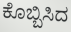
ಕೊಬ್ಬಿಸಿದ